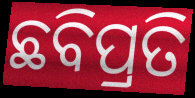
ଛବିପ୍ରତି